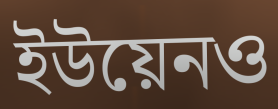
ইউয়েনও